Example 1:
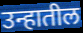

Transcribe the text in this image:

उन्हातील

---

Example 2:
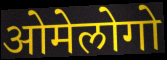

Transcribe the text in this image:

ओमेलोगो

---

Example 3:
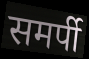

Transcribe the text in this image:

समर्पी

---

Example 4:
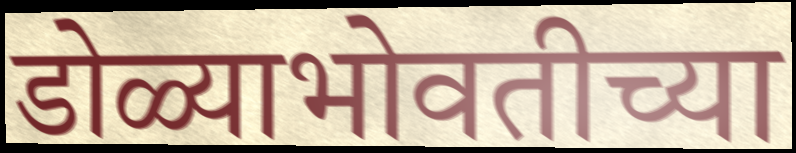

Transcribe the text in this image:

डोळ्याभोवतीच्या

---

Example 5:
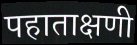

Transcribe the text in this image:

पहाताक्षणी